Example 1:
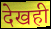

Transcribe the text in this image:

देखही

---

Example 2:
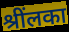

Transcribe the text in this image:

श्रींलका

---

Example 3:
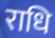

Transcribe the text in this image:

राधि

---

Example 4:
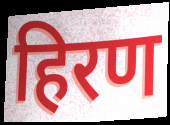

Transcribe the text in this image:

हिरण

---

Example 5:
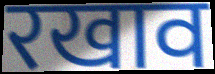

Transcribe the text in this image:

रखाव